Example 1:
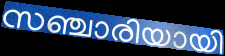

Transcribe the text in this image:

സഞ്ചാരിയായി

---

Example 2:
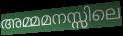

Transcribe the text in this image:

അമ്മമനസ്സിലെ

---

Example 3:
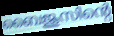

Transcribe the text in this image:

ബൈജൂസിന്റെ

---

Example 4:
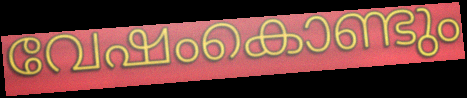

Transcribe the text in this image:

വേഷംകൊണ്ടും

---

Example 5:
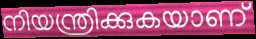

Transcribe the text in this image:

നിയന്ത്രിക്കുകയാണ്